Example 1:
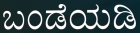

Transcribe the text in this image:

ಬಂಡೆಯಡಿ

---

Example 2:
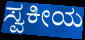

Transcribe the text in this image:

ಸ್ವಕೀಯ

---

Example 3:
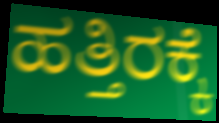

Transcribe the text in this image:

ಹತ್ತಿರಕ್ಕೆ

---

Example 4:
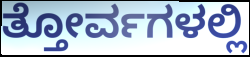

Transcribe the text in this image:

ತ್ತೋರ್ವಗಳಲ್ಲಿ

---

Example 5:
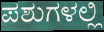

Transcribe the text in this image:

ಪಶುಗಳಲ್ಲಿ